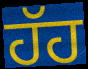
ਹੱਹ